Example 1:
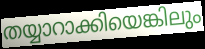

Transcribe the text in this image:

തയ്യാറാക്കിയെങ്കിലും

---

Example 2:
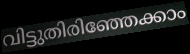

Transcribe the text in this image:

വിട്ടുതിരിഞ്ഞേക്കാം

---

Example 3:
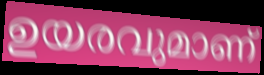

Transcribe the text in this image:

ഉയരവുമാണ്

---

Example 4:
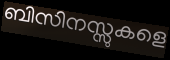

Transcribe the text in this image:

ബിസിനസ്സുകളെ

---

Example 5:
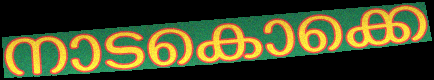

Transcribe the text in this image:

നാടകൊക്കെ